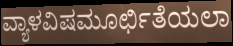
ವ್ಯಾಳವಿಷಮೂರ್ಛಿತೆಯಲಾ